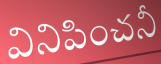
వినిపించనీ